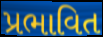
પ્રભાવિત